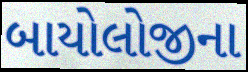
બાયોલોજીના